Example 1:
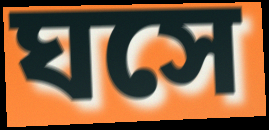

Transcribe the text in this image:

ঘসে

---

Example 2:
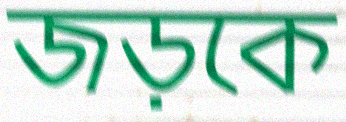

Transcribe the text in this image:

জড়কে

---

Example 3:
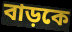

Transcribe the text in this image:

বাড়কে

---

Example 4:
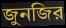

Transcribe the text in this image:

জুনজির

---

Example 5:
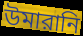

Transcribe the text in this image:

উমারানি